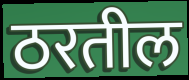
ठरतील